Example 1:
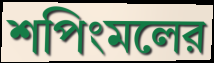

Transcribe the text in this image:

শপিংমলের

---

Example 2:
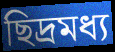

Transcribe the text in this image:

ছিদ্রমধ্য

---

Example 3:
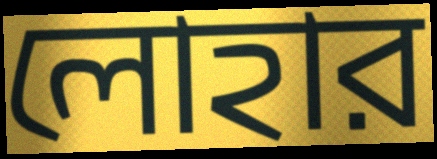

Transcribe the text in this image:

লোহার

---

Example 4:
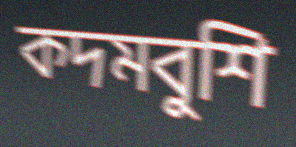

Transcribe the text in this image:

কদমবুশি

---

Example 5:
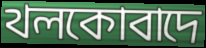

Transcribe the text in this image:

থলকোবাদে